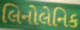
લિનોલેનિક